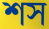
শস